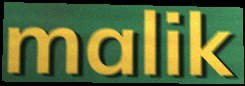
malik